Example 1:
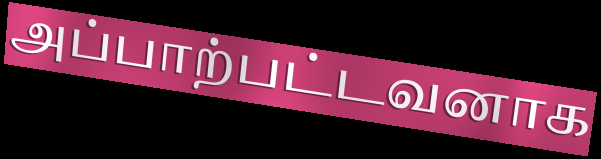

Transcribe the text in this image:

அப்பாற்பட்டவனாக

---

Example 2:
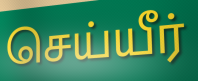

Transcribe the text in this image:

செய்யீர்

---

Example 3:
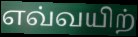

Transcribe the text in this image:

எவ்வயிற்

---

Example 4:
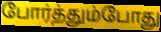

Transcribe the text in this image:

போர்த்தும்போது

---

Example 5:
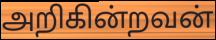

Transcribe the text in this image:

அறிகின்றவன்